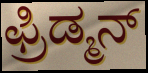
ಫ್ರಿಡ್ಮನ್